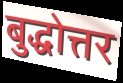
बुद्धोत्तर